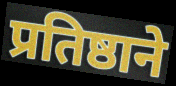
प्रतिष्ठाने